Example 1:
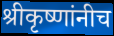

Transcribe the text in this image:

श्रीकृष्णांनीच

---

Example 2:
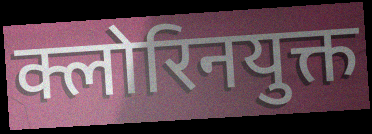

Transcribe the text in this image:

क्लोरिनयुक्त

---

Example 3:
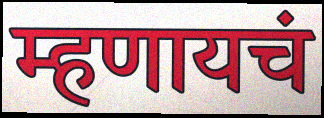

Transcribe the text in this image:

म्हणायचं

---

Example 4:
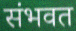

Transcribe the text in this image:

संभवत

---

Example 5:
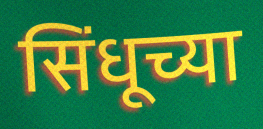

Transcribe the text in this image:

सिंधूच्या